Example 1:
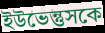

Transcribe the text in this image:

ইউভেন্তুসকে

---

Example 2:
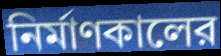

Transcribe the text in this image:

নির্মাণকালের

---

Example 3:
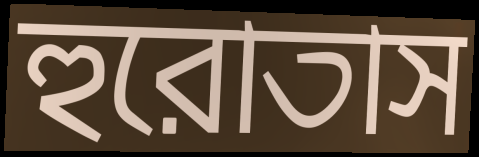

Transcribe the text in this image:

হুরোতাস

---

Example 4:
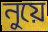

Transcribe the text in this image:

নুয়ে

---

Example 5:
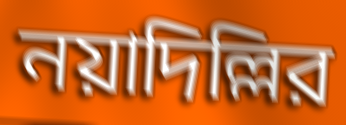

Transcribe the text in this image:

নয়াদিল্লির